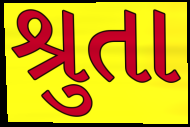
શ્રુતા